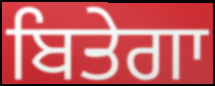
ਬਿਤੇਗਾ